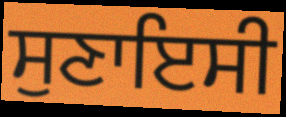
ਸੁਣਾਇਸੀ